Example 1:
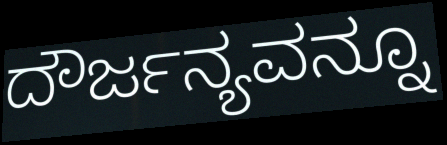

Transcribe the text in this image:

ದೌರ್ಜನ್ಯವನ್ನೂ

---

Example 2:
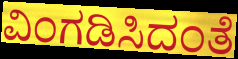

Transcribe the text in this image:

ವಿಂಗಡಿಸಿದಂತೆ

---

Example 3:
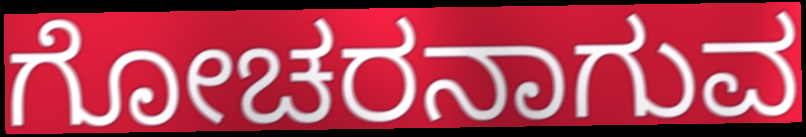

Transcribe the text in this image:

ಗೋಚರನಾಗುವ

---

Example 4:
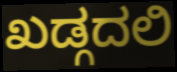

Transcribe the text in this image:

ಖಡ್ಗದಲಿ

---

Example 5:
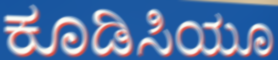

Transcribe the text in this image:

ಕೂಡಿಸಿಯೂ